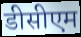
डीसीएम